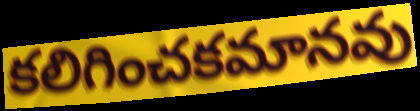
కలిగించకమానవు